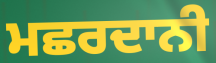
ਮਛਰਦਾਨੀ